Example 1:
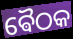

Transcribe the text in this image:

ଵୈଠକ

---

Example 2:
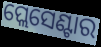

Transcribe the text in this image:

ପ୍ଲେସେଣ୍ଟାର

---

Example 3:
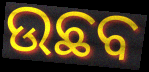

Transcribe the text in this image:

ଉଛବ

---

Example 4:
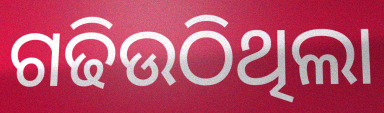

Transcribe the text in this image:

ଗଢିଉଠିଥିଲା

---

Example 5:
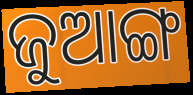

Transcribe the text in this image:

ଜୁଆଙ୍ଗ